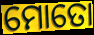
ମୋତୋ